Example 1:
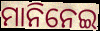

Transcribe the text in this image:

ମାନିନେଇ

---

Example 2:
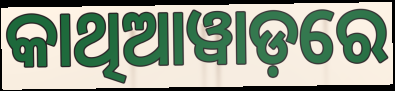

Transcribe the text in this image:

କାଥିଆୱାଡ଼ରେ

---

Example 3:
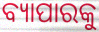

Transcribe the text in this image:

ବ୍ୟାପାରକୁ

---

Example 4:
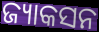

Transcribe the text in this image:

ଜ୍ୟାକସନ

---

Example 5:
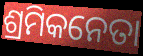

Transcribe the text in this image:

ଶ୍ରମିକନେତା